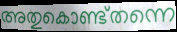
അതുകൊണ്ട്തന്നെ